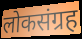
लोकसंग्रह